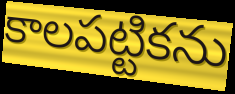
కాలపట్టికను